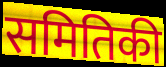
समितिकी